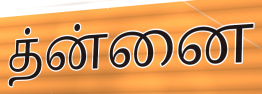
த்ன்னை